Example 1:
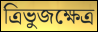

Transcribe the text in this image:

ত্রিভুজক্ষেত্র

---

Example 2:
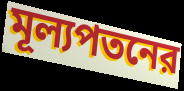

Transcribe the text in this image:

মূল্যপতনের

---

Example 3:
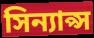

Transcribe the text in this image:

সিন্যাপ্স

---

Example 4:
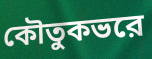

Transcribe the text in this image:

কৌতুকভরে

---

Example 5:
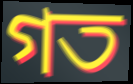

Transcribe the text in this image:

গত